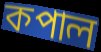
কপাল